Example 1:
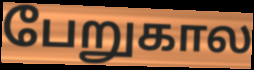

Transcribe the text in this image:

பேறுகால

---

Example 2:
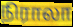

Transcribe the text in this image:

நிராலா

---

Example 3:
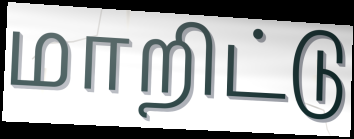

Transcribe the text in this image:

மாறிட்டு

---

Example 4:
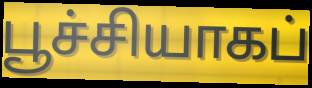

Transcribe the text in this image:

பூச்சியாகப்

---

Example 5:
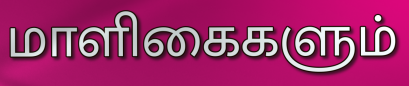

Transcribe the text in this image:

மாளிகைகளும்